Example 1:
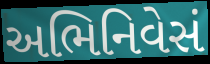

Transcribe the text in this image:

અભિનિવેસં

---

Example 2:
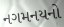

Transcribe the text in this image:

નગમનયનો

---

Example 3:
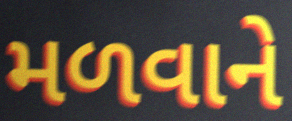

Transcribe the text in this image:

મળવાને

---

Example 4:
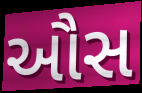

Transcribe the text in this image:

ઔસ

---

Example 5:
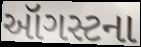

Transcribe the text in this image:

ઑગસ્ટના